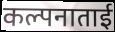
कल्पनाताई